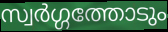
സ്വർഗ്ഗത്തോടും